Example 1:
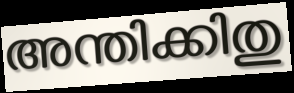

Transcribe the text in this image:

അന്തിക്കിതു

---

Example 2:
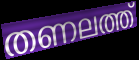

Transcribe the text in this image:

തണലത്ത്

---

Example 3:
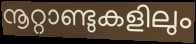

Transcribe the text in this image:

നൂറ്റാണ്ടുകളിലും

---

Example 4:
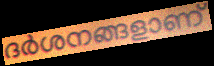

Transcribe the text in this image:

ദർശനങ്ങളാണ്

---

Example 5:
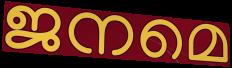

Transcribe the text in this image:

ജനമെ